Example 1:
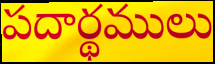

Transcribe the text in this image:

పదార్థములు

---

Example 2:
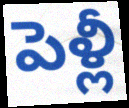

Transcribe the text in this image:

పెళ్లీ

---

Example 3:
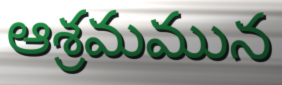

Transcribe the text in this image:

ఆశ్రమమున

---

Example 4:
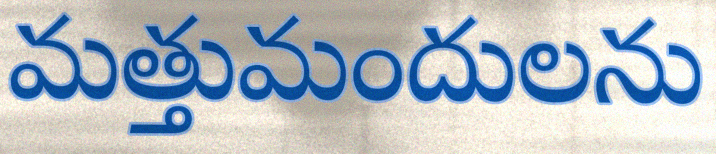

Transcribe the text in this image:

మత్తుమందులను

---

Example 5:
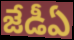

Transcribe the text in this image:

జేడీఏ